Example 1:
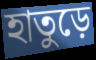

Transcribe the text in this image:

হাতুড়ে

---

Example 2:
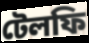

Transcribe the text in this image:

টেলফি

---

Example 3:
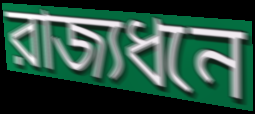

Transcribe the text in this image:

রাজ্যধনে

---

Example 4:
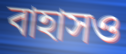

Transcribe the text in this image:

বাহাসও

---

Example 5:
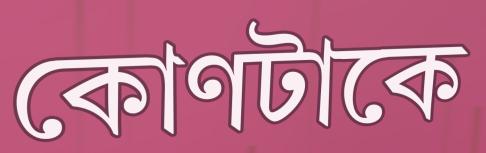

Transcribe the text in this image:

কোণটাকে